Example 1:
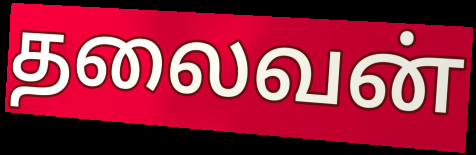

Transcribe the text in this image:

தலைவன்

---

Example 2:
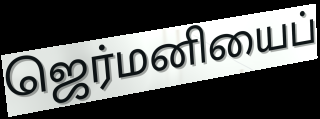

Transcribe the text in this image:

ஜெர்மனியைப்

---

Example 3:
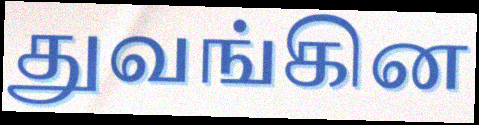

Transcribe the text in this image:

துவங்கின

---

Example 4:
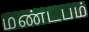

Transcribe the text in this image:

மண்டபம்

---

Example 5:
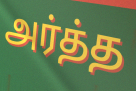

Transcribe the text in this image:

அர்த்த